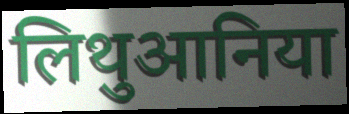
लिथुआनिया